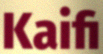
Kaifi